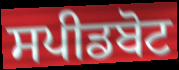
ਸਪੀਡਬੋਟ